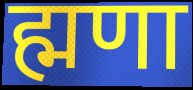
ह्मणा